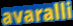
avaralli